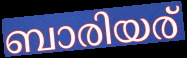
ബാരിയര്